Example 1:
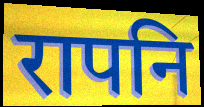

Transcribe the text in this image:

रापनि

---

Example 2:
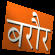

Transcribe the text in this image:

बरौर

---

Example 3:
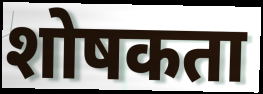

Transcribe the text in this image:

शोषकता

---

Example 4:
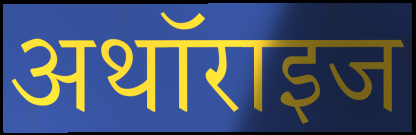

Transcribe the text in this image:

अथॉराइज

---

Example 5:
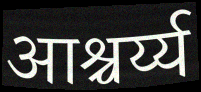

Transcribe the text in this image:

आश्चर्य्य